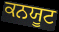
ਕਨਯੂਟ